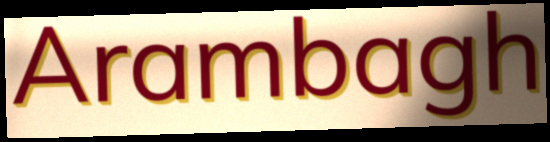
Arambagh